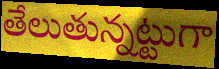
తేలుతున్నట్టుగా